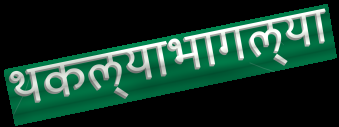
थकल्याभागल्या